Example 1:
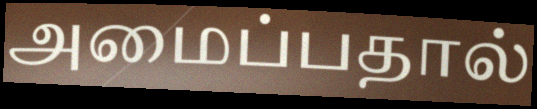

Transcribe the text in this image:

அமைப்பதால்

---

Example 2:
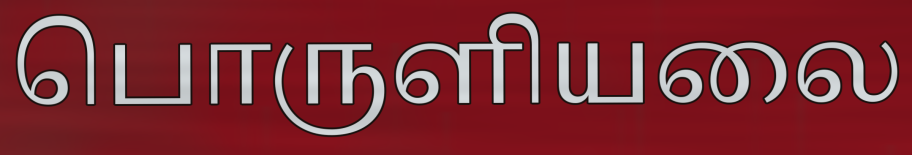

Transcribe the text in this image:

பொருளியலை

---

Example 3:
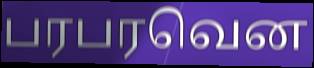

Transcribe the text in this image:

பரபரவென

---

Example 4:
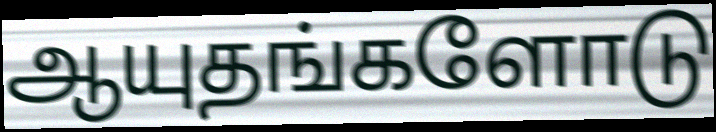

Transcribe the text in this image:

ஆயுதங்களோடு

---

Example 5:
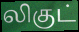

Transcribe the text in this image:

லிகுட்